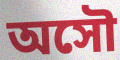
অসৌ